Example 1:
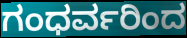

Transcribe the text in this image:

ಗಂಧರ್ವರಿಂದ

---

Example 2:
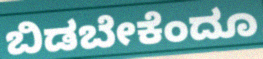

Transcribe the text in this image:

ಬಿಡಬೇಕೆಂದೂ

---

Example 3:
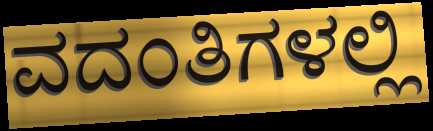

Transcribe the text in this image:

ವದಂತಿಗಳಲ್ಲಿ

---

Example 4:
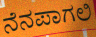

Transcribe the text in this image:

ನೆನಪಾಗಲಿ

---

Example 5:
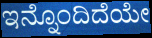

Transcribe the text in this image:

ಇನ್ನೊಂದಿದೆಯೇ